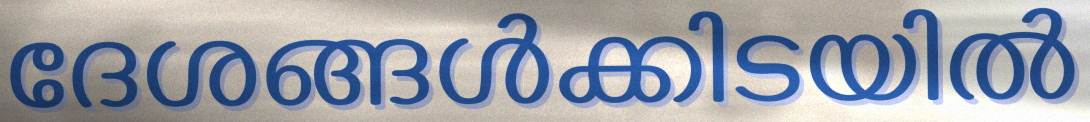
ദേശങ്ങൾക്കിടയിൽ